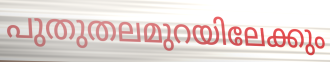
പുതുതലമുറയിലേക്കും